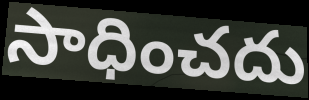
సాధించదు